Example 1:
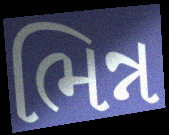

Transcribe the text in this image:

ભિન્ન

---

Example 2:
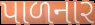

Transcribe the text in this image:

પાળનાર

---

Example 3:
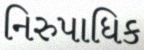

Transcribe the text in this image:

નિરુપાધિક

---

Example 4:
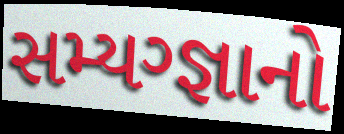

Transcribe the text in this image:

સમ્યગ્જ્ઞાનો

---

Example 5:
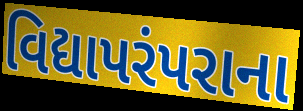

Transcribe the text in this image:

વિદ્યાપરંપરાના